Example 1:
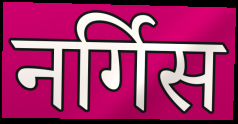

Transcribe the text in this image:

नर्गिस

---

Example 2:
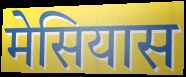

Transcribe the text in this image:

मेसियास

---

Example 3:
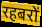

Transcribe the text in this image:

रहबरों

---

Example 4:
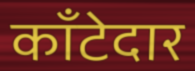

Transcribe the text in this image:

काँटेदार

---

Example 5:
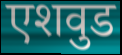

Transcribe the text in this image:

एशवुड